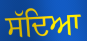
ਸੱਦਿਆ